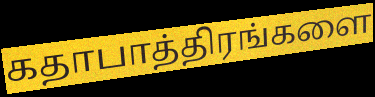
கதாபாத்திரங்களை